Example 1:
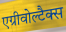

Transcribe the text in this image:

एग्रीवोल्टैक्स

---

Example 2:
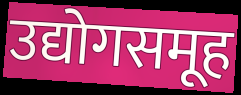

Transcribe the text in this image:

उद्योगसमूह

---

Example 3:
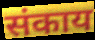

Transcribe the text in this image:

संकाय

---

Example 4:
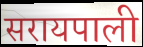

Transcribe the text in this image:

सरायपाली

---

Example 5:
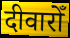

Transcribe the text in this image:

दीवारोँ